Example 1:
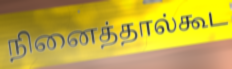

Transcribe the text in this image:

நினைத்தால்கூட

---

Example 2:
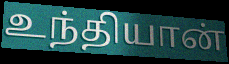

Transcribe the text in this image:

உந்தியான்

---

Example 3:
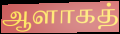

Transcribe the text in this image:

ஆளாகத்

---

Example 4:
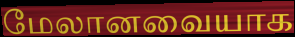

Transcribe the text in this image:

மேலானவையாக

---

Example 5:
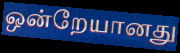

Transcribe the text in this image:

ஒன்றேயானது